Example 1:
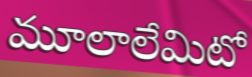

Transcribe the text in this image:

మూలాలేమిటో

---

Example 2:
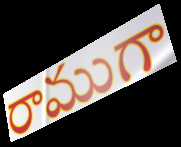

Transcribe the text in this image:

రాముగా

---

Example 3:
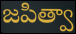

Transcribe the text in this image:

జపిత్వా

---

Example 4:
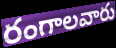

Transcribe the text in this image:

రంగాలవారు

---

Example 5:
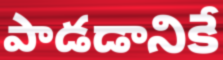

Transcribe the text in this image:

పాడడానికే